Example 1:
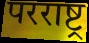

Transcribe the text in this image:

परराष्ट्र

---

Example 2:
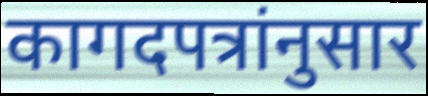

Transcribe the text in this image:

कागदपत्रांनुसार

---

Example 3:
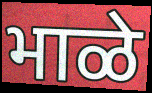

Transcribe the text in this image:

भाळे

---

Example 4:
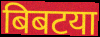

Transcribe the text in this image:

बिबटया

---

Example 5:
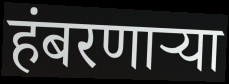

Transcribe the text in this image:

हंबरणाऱ्या